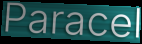
Paracel